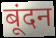
बूंदन